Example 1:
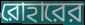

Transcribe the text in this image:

রোহারের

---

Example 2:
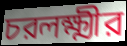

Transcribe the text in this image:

চরলক্ষ্মীর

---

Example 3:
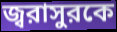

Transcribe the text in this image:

জ্বরাসুরকে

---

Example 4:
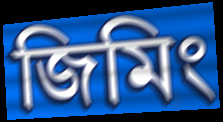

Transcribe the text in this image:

জিমিং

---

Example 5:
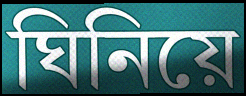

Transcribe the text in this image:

ঘিনিয়ে